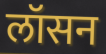
लॉसन